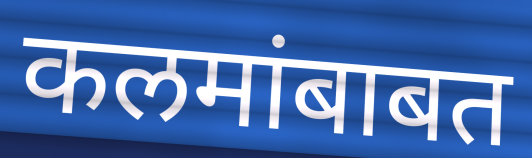
कलमांबाबत